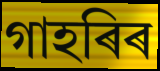
গাহৰিৰ